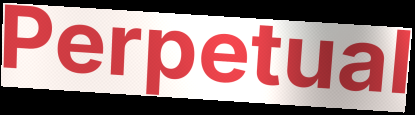
Perpetual